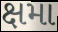
ક્ષમા